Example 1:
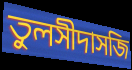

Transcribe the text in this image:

তুলসীদাসজি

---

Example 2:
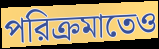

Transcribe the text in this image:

পরিক্রমাতেও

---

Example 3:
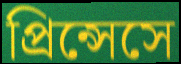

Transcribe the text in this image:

প্রিন্সেসে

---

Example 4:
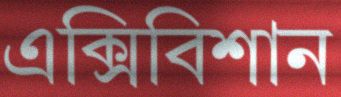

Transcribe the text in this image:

এক্সিবিশান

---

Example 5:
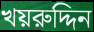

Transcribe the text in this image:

খয়রুদ্দিন